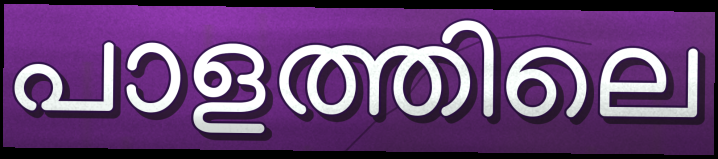
പാളത്തിലെ